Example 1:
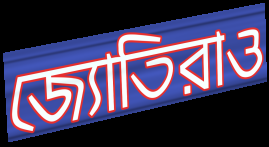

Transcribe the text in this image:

জ্যোতিরাও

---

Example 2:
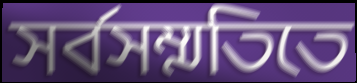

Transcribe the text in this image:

সর্বসম্মতিতে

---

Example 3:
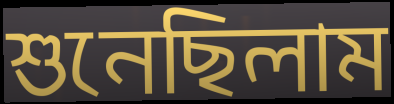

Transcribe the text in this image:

শুনেছিলাম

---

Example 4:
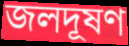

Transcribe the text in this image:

জলদূষণ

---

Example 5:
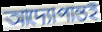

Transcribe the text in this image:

আদ্যোপান্তই